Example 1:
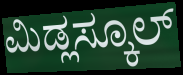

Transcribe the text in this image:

ಮಿಡ್ಲಸ್ಕೂಲ್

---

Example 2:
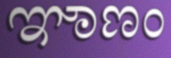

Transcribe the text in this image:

ಞಾಣಂ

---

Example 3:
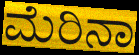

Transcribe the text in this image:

ಮೆರಿನಾ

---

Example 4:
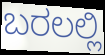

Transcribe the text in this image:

ಬರಲಲ್ಲಿ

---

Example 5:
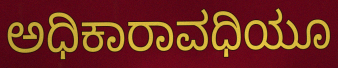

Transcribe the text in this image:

ಅಧಿಕಾರಾವಧಿಯೂ